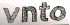
vnto